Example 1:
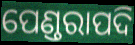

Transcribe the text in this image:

ପେଣ୍ଡରାପଦି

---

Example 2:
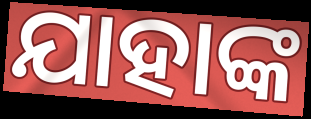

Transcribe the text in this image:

ଯାହାଙ୍କ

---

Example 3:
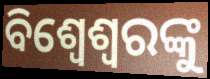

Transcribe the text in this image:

ବିଶ୍ୱେଶ୍ୱରଙ୍କୁ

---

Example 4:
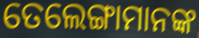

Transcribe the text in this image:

ତେଲେଙ୍ଗାମାନଙ୍କ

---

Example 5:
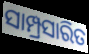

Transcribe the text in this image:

ସାମ୍ପ୍ରସାରିତ